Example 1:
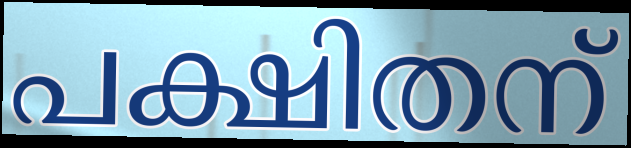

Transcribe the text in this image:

പക്ഷിതന്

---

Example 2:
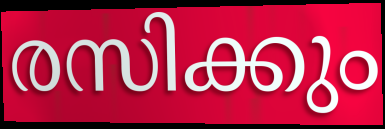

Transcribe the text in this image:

രസിക്കും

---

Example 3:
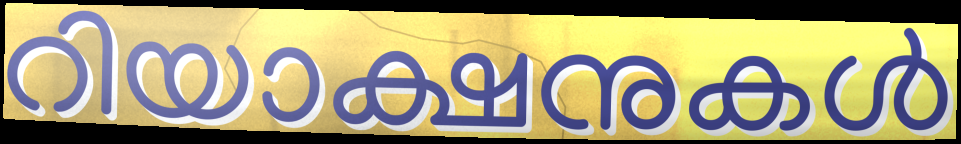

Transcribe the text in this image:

റിയാക്ഷനുകൾ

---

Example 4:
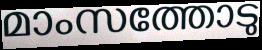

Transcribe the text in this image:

മാംസത്തോടു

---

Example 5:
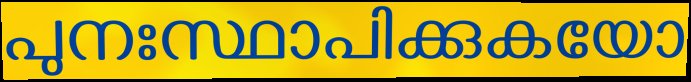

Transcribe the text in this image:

പുനഃസ്ഥാപിക്കുകയോ